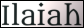
Ilaiah